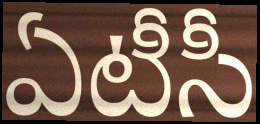
ఏటీసీ